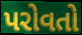
પરોવતો